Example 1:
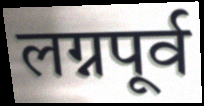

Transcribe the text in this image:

लग्नपूर्व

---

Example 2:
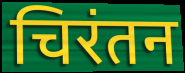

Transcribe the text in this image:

चिरंतन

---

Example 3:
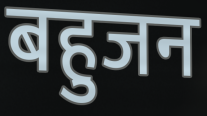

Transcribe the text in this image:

बहुजन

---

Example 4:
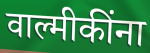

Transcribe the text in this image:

वाल्मीकींना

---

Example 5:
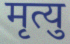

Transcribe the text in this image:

मृत्यु